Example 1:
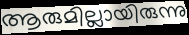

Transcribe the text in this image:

ആരുമില്ലായിരുന്നു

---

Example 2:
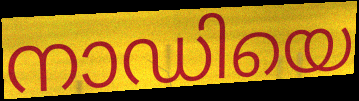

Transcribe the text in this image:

നാഡിയെ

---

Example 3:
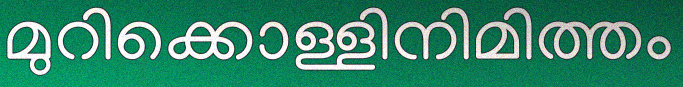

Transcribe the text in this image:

മുറിക്കൊള്ളിനിമിത്തം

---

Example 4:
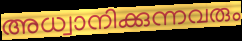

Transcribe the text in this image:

അധ്വാനിക്കുന്നവരും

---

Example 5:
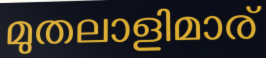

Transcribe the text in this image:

മുതലാളിമാര്